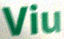
Viu